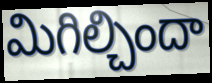
మిగిల్చిందా